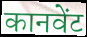
कानवेंट